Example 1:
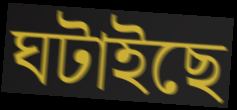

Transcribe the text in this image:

ঘটাইছে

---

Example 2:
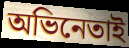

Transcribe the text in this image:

অভিনেতাই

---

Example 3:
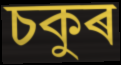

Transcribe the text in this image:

চকুৰ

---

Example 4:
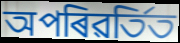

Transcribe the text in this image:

অপৰিৱৰ্তিত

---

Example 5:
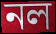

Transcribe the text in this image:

নল